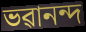
ভৱানন্দ